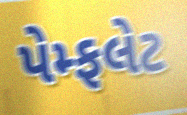
પેમ્ફલેટ